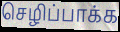
செழிப்பாக்க